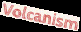
Volcanism